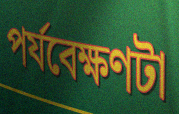
পর্যবেক্ষণটা